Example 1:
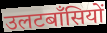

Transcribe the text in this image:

उलटबाँसियों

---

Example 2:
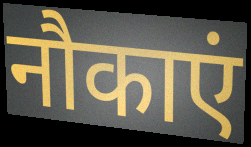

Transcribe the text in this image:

नौकाएं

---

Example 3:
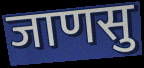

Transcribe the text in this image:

जाणसु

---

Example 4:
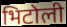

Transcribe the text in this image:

भिटोली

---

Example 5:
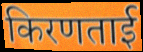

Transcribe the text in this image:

किरणताई